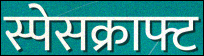
स्पेसक्राफ्ट